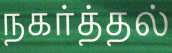
நகர்த்தல்